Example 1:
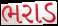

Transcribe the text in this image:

ભરાડ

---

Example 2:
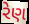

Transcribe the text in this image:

રેણ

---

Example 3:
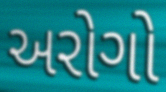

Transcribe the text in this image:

અરોગો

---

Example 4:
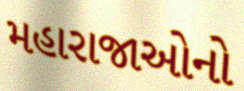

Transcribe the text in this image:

મહારાજાઓનો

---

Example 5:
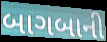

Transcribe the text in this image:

બાગબાની